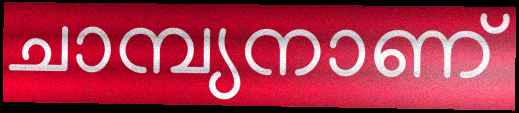
ചാമ്പ്യനാണ്